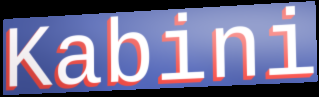
Kabini